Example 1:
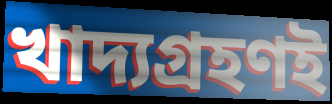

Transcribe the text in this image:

খাদ্যগ্রহণই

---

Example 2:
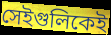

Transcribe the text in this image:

সেইগুলিকেই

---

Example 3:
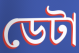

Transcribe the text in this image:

ডেটা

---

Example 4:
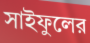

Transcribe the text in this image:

সাইফুলের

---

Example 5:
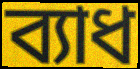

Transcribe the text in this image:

ব্যাধ